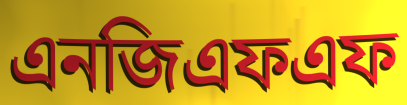
এনজিএফএফ